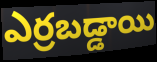
ఎర్రబడ్డాయి